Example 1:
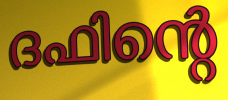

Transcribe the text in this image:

ദഫിന്റെ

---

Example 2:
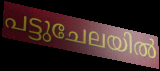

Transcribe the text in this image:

പട്ടുചേലയിൽ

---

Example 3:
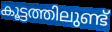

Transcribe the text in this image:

കൂട്ടത്തിലുണ്ട്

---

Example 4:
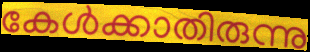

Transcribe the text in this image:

കേൾക്കാതിരുന്നു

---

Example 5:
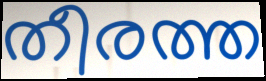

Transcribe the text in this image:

തീരത്ത